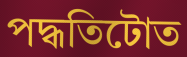
পদ্ধতিটোত